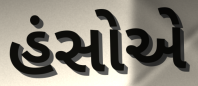
હંસોએ